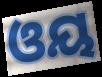
ଓୟ